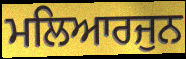
ਮਲਿਆਰਜੁਨ